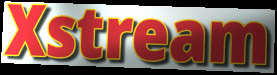
Xstream